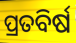
ପ୍ରତବିର୍ଷ